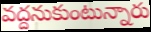
వద్దనుకుంటున్నారు